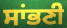
ਸਾਂਭਣੀ